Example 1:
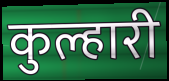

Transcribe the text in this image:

कुल्हारी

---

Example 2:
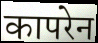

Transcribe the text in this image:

कापरेन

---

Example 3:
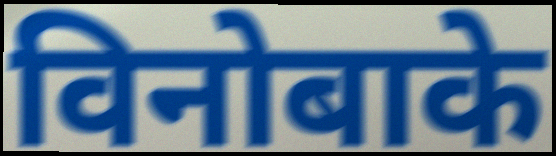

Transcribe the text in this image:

विनोबाके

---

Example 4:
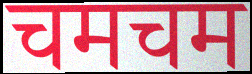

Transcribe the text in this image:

चमचम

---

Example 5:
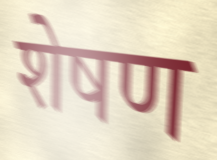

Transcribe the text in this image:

शेषण